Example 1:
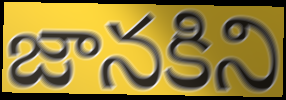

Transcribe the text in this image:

జానకిని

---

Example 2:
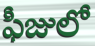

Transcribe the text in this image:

ఫీజులో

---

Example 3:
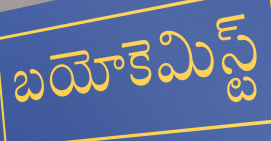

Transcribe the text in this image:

బయోకెమిస్ట్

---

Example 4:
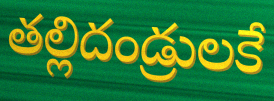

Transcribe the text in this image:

తల్లిదండ్రులకే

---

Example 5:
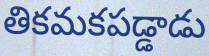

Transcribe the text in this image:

తికమకపడ్డాడు